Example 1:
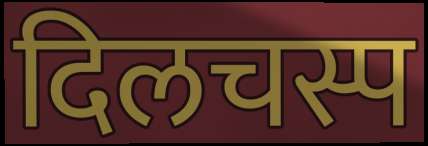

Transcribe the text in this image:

दिलचस्प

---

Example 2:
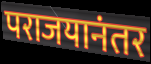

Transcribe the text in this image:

पराजयानंतर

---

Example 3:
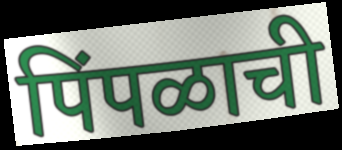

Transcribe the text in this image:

पिंपळाची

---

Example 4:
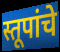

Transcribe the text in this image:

स्तूपांचे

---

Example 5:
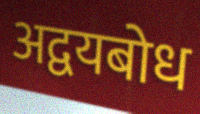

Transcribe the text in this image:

अद्वयबोध